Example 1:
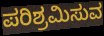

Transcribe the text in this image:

ಪರಿಶ್ರಮಿಸುವ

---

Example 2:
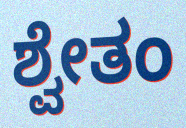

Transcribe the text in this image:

ಶ್ವೇತಂ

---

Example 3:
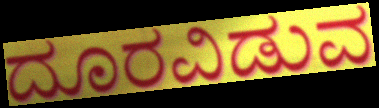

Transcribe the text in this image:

ದೂರವಿಡುವ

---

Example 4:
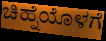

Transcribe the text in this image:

ಚಿಹ್ನೆಯೊಳಗೆ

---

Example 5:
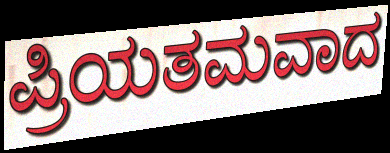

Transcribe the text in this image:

ಪ್ರಿಯತಮವಾದ